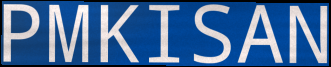
PMKISAN